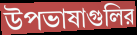
উপভাষাগুলির